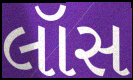
લૉસ